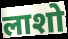
लाशो